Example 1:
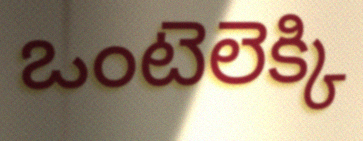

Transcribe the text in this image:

ఒంటెలెక్కి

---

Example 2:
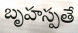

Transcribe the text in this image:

బృహస్పతే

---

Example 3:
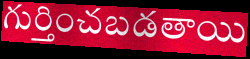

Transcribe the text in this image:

గుర్తించబడతాయి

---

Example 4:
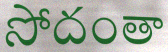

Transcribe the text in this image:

సోదంతా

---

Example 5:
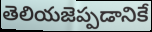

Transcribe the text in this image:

తెలియజెప్పడానికే